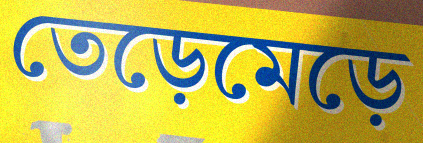
তেড়েমেড়ে